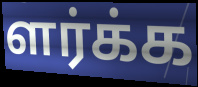
ளர்க்க